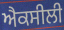
ਐਕਸੀਲੀ